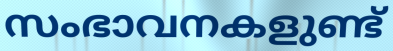
സംഭാവനകളുണ്ട്